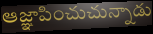
ఆజ్ఞాపించుచున్నాడు